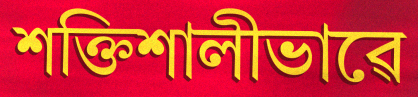
শক্তিশালীভাৱে